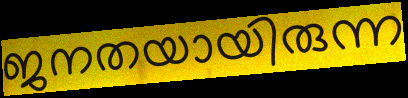
ജനതയായിരുന്ന